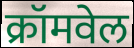
क्रॉमवेल